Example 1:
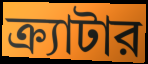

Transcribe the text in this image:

ক্র্যাটার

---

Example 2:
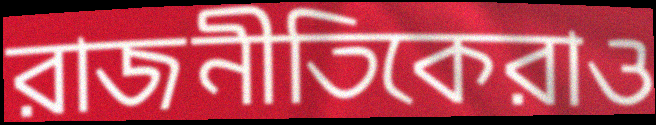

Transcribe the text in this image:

রাজনীতিকেরাও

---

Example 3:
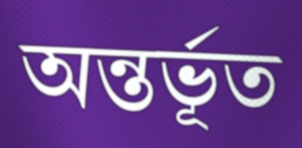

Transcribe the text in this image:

অন্তর্ভূত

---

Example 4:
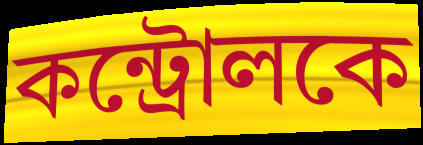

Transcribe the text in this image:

কন্ট্রোলকে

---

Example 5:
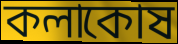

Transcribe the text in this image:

কলাকোষ